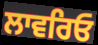
ਲਾਵਰਿਓ